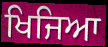
ਖਿਜਿਆ